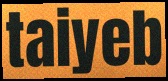
taiyeb